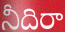
నీదిరా